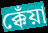
ক্কেঁয়া